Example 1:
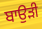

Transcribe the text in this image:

ਬਾਉੜੀ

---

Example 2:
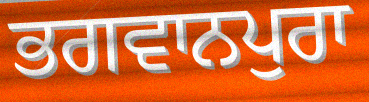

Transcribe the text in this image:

ਭਗਵਾਨਪੁਰਾ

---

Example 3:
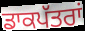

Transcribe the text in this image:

ਡਾਕਪੱਤਰਾਂ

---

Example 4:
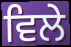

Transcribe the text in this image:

ਵਿਲੇ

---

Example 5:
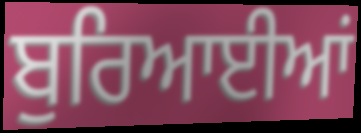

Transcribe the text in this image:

ਬੁਰਿਆਈਆਂ